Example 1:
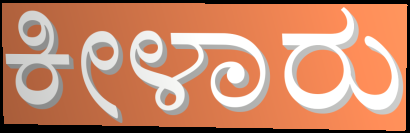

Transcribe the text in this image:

ಕೀಳಾರು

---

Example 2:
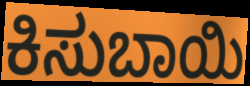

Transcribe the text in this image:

ಕಿಸುಬಾಯಿ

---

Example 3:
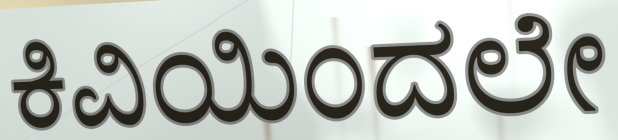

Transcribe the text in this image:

ಕಿವಿಯಿಂದಲೇ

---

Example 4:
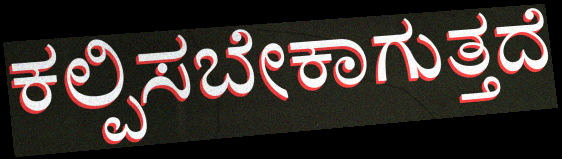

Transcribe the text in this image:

ಕಲ್ಪಿಸಬೇಕಾಗುತ್ತದೆ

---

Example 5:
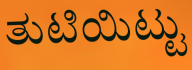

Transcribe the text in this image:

ತುಟಿಯಿಟ್ಟು